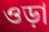
ওড়া